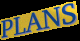
PLANS